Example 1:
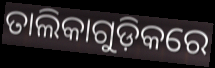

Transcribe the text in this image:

ତାଲିକାଗୁଡ଼ିକରେ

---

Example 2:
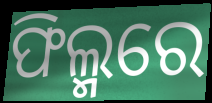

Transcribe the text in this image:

ଫିଲ୍ମରେ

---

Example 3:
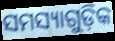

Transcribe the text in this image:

ସମସ୍ୟାଗୁଡ଼ିକ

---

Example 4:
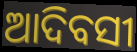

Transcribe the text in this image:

ଆଦିବସୀ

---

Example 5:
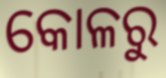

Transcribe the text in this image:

କୋଳରୁ